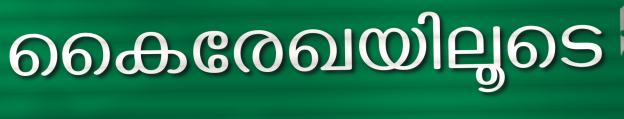
കൈരേഖയിലൂടെ